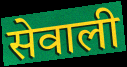
सेवाली